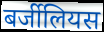
बर्जीलियस